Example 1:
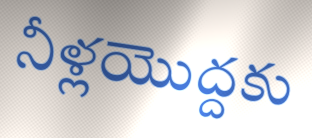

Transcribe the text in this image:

నీళ్లయొద్దకు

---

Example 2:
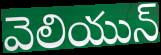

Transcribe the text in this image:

వెలియున్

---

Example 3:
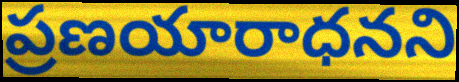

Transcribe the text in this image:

ప్రణయారాధనని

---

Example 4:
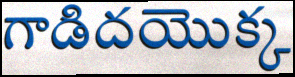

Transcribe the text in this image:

గాడిదయొక్క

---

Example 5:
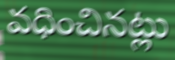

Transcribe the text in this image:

వధించినట్లు